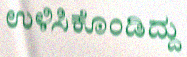
ಉಳಿಸಿಕೊಂಡಿದ್ದು